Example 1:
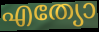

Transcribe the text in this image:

എത്യോ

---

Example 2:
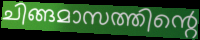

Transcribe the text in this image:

ചിങ്ങമാസത്തിന്റെ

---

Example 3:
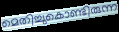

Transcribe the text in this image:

മെതിച്ചുകൊണ്ടിരുന്ന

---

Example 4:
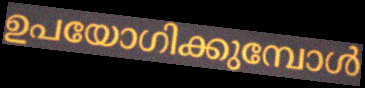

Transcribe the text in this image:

ഉപയോഗിക്കുമ്പോൾ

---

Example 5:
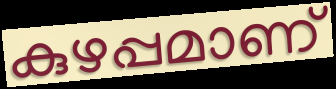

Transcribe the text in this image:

കുഴപ്പമാണ്